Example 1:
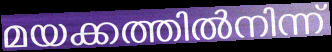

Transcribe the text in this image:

മയക്കത്തിൽനിന്ന്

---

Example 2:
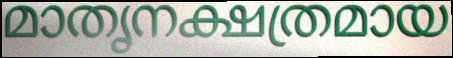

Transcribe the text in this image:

മാതൃനക്ഷത്രമായ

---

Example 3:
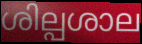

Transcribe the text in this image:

ശില്പശാല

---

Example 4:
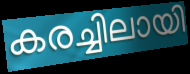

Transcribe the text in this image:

കരച്ചിലായി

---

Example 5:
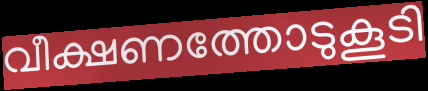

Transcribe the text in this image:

വീക്ഷണത്തോടുകൂടി